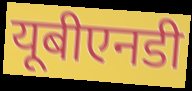
यूबीएनडी